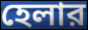
হেলার